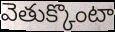
వెతుక్కొంటా